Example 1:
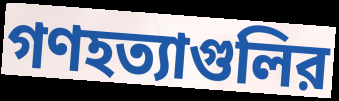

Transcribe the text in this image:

গণহত্যাগুলির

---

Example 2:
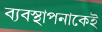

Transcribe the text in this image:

ব্যবস্থাপনাকেই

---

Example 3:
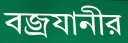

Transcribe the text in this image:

বজ্রযানীর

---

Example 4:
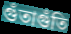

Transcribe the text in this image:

গুঁতাগুঁতি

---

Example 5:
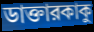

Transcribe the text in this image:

ডাক্তারকাকু